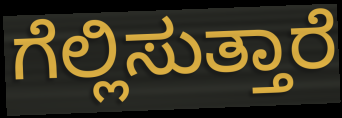
ಗೆಲ್ಲಿಸುತ್ತಾರೆ